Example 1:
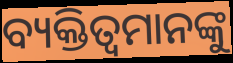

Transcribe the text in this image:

ବ୍ୟକ୍ତିତ୍ବମାନଙ୍କୁ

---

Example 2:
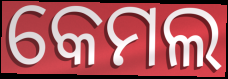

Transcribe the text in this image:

କେମଲ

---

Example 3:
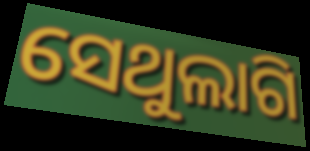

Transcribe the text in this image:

ସେଥୁଲାଗି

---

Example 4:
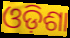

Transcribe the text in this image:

ଓଡ଼ିଶା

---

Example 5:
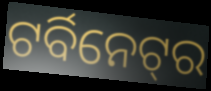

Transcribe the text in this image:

ଟର୍ବିନେଟ୍‌ର